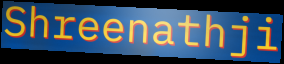
Shreenathji